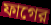
ফাগের